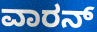
ವಾರನ್